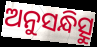
ଅନୁସନ୍ଧିତ୍ସୁ